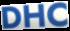
DHC